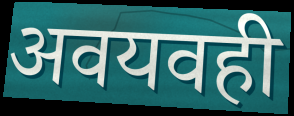
अवयवही